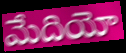
మేదియో